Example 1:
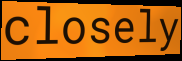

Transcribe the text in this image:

closely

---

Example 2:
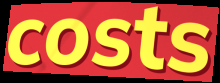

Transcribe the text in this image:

costs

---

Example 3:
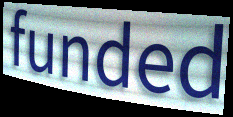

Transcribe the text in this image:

funded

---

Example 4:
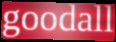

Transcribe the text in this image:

goodall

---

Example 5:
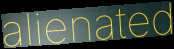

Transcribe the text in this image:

alienated